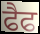
ਫੈਫ